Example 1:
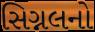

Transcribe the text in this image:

સિગ્નલનો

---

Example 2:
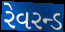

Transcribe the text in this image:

રેવરન્ડ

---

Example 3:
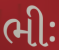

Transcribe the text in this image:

ભીઃ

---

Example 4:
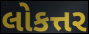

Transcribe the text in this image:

લોકત્તર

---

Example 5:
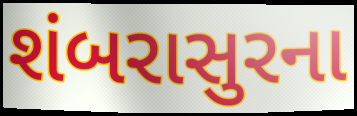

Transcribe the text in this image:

શંબરાસુરના